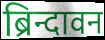
ब्रिन्दावन